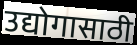
उद्योगासाठी